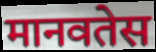
मानवतेस